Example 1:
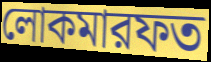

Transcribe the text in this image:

লোকমারফত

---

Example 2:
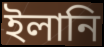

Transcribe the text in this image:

ইলানি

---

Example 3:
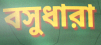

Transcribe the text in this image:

বসুধারা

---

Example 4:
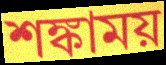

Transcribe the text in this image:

শঙ্কাময়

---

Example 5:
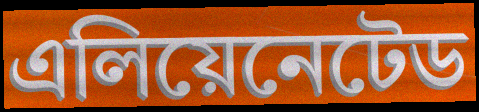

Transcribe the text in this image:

এলিয়েনেটেড